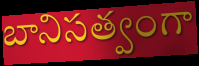
బానిసత్వంగా